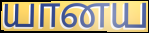
யானய